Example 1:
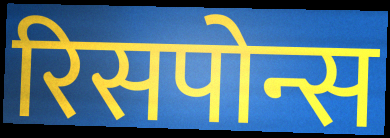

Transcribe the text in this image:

रिसपोन्स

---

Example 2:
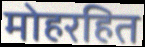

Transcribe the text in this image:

मोहरहित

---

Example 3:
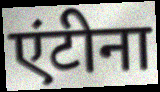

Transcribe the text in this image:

एंटीना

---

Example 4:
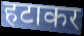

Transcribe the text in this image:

हटाकर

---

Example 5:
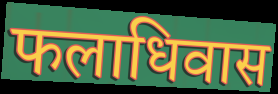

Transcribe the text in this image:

फलाधिवास